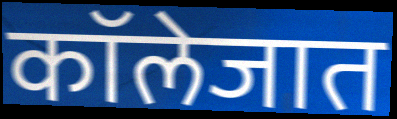
कॉलेजात